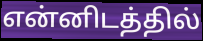
என்னிடத்தில்